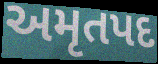
અમૃતપદ